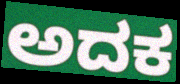
ಅದಕ